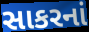
સાકરનાં